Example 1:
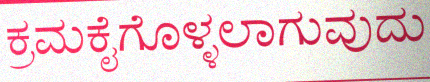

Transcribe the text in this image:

ಕ್ರಮಕೈಗೊಳ್ಳಲಾಗುವುದು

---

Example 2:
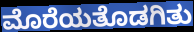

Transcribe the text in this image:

ಮೊರೆಯತೊಡಗಿತು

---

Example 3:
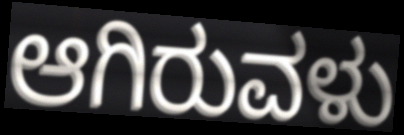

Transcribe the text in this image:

ಆಗಿರುವಳು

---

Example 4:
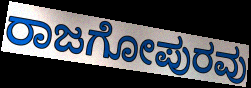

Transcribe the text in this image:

ರಾಜಗೋಪುರವು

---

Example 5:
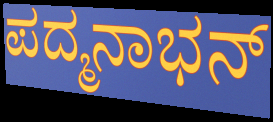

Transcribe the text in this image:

ಪದ್ಮನಾಭನ್